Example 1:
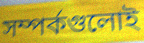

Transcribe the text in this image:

সম্পর্কগুলোই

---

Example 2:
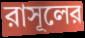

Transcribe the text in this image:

রাসূলের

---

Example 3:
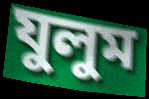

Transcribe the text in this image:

যুলুম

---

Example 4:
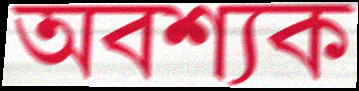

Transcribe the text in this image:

অবশ্যক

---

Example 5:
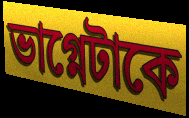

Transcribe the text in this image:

ভাগ্নেটাকে